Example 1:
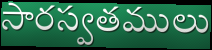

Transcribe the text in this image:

సారస్వతములు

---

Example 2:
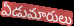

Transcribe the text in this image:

ఏడుమారులు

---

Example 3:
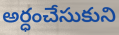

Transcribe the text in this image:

అర్ధంచేసుకుని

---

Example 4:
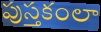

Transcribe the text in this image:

పుస్తకంలా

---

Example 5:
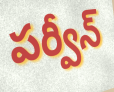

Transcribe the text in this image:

పర్వీన్